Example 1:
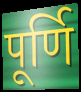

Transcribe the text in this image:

पूर्णि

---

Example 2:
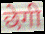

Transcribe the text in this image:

छेगी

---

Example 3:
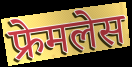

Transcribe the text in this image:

फ्रेमलेस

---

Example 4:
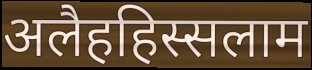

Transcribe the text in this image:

अलैहहिस्सलाम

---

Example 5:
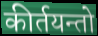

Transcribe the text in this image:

कीर्तयन्तो